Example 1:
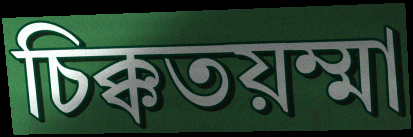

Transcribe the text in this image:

চিক্কতয়ম্মা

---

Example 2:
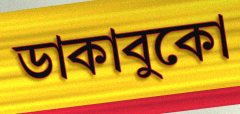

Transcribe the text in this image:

ডাকাবুকো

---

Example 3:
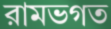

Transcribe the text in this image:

রামভগত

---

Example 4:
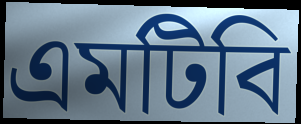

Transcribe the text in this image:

এমটিবি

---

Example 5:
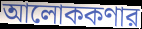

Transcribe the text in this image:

আলোককণার